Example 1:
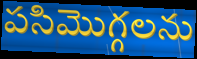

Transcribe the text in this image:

పసిమొగ్గలను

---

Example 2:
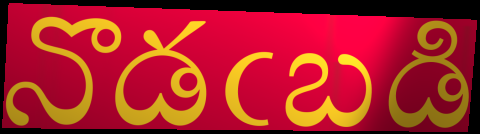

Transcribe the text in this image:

నొడఁబడి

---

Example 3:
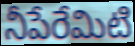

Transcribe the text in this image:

నీపేరేమిటి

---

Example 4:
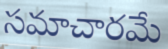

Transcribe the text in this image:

సమాచారమే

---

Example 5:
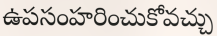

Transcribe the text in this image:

ఉపసంహరించుకోవచ్చు